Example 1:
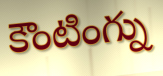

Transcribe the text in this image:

కౌంటింగ్ను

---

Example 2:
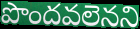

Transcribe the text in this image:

పొందవలెనని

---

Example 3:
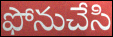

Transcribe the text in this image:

ఫోనుచేసి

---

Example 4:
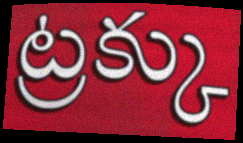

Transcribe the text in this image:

ట్రక్కు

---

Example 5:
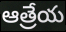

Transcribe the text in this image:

ఆత్రేయ